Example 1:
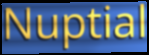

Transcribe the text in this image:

Nuptial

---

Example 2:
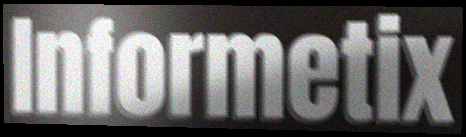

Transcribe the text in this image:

Informetix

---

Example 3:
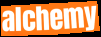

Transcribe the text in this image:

alchemy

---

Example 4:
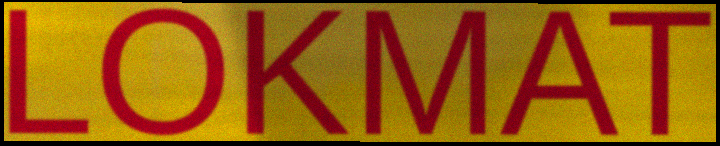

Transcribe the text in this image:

LOKMAT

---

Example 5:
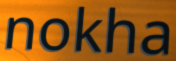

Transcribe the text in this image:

nokha